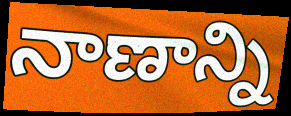
నాణాన్ని